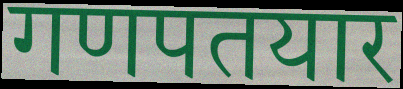
गणपतयार